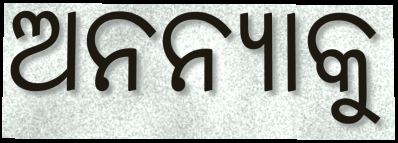
ଅନନ୍ୟାକୁ